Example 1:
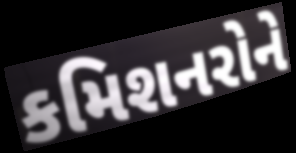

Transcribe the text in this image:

કમિશનરોને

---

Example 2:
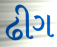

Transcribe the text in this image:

ઢીગ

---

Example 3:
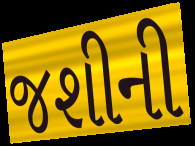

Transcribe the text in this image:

જશીની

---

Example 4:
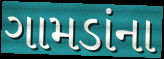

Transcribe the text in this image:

ગામડાંના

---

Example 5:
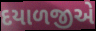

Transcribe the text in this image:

દયાળજીએ